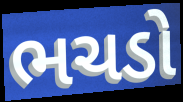
ભચડો